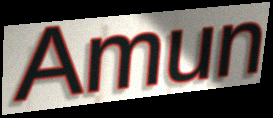
Amun